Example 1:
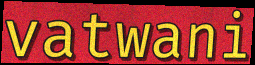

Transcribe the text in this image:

vatwani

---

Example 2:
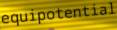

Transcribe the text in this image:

equipotential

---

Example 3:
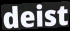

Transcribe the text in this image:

deist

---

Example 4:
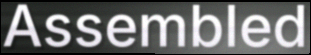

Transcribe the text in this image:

Assembled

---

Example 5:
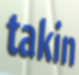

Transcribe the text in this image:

takin